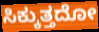
ಸಿಕ್ಕುತ್ತದೋ